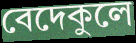
বেদেকুলে